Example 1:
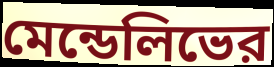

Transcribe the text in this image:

মেন্ডেলিভের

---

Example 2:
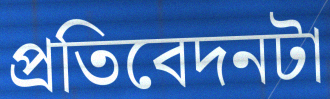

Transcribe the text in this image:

প্রতিবেদনটা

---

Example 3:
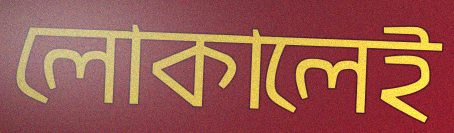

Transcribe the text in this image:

লোকালেই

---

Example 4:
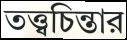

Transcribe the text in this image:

তত্ত্বচিন্তার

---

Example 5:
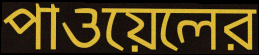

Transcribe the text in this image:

পাওয়েলের